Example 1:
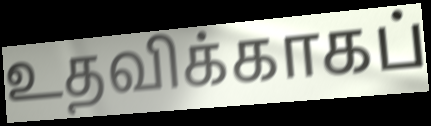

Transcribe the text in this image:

உதவிக்காகப்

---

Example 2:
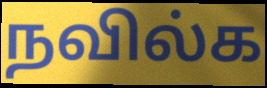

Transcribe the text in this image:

நவில்க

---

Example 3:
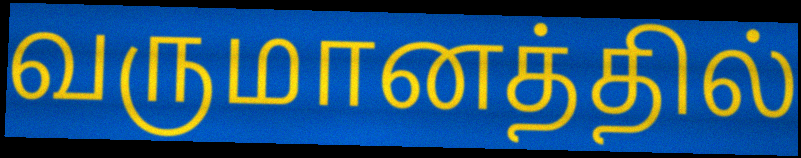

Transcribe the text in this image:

வருமானத்தில்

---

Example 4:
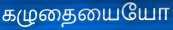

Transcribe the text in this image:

கழுதையையோ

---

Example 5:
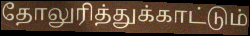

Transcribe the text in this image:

தோலுரித்துக்காட்டும்